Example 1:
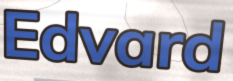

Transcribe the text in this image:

Edvard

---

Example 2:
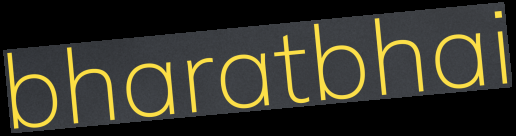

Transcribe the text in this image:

bharatbhai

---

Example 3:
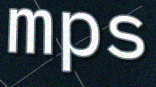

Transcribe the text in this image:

mps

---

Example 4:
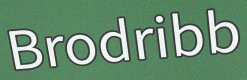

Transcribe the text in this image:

Brodribb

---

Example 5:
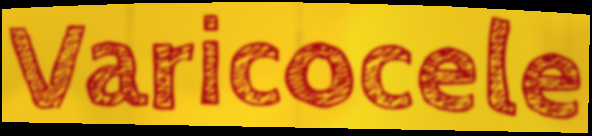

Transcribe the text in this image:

Varicocele